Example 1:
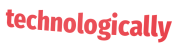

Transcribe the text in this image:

technologically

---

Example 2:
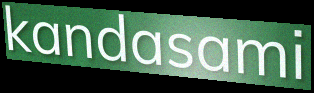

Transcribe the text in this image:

kandasami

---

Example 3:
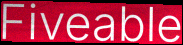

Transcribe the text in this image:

Fiveable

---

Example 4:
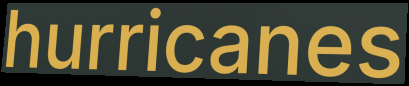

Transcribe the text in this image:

hurricanes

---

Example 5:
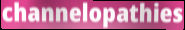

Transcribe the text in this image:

channelopathies